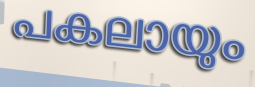
പകലായും